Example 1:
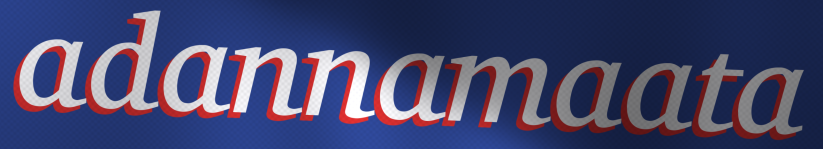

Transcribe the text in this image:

adannamaata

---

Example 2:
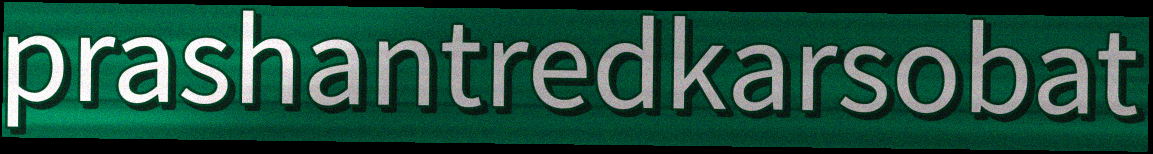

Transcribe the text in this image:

prashantredkarsobat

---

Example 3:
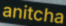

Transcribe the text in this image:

anitcha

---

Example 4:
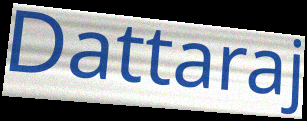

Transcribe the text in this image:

Dattaraj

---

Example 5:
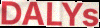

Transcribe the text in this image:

DALYs